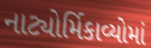
નાટ્યોર્મિકાવ્યોમાં